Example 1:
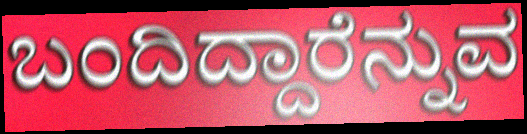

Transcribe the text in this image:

ಬಂದಿದ್ದಾರೆನ್ನುವ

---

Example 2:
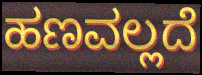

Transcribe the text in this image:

ಹಣವಲ್ಲದೆ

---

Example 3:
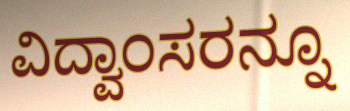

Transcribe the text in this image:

ವಿದ್ವಾಂಸರನ್ನೂ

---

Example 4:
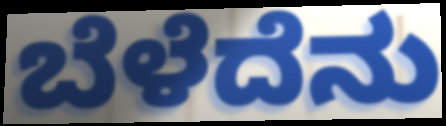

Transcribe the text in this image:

ಬೆಳೆದೆನು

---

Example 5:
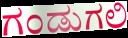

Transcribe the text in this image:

ಗಂಡುಗಲಿ